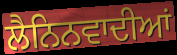
ਲੈਨਿਨਵਾਦੀਆਂ